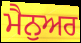
ਮੈਨੁਅਰ